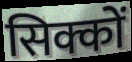
सिक्कों